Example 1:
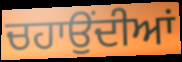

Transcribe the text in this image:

ਚਹਾਉਂਦੀਆਂ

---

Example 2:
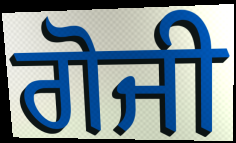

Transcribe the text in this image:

ਗੋਜੀ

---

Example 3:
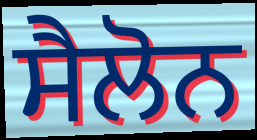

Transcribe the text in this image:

ਸੈਲੋਨ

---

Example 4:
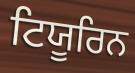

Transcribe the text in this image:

ਟਿਯੂਰਿਨ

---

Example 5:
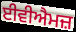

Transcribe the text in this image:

ਈਵੀਐਮਜ਼